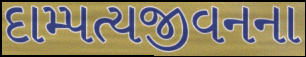
દામ્પત્યજીવનના